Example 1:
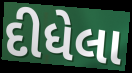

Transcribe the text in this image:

દીધેલા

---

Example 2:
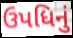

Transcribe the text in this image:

ઉપધિનું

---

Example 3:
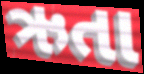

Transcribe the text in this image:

ઋતા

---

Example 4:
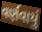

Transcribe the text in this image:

વર્ણવાયું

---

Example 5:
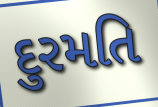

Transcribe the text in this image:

દુરમતિ